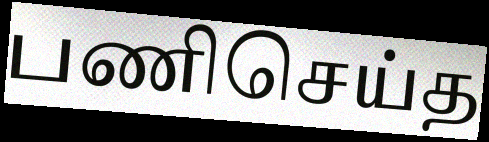
பணிசெய்த